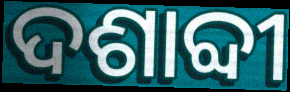
ଦଶାବ୍ଦୀ